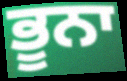
ਭੂਨਾ